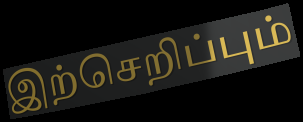
இற்செறிப்பும்